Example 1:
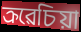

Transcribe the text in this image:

ক্ৰৱেচিয়া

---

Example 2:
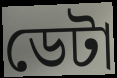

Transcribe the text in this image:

ডেটা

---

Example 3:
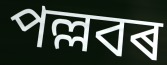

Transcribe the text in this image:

পল্লবৰ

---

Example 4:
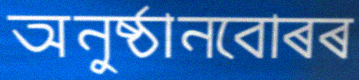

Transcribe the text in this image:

অনুষ্ঠানবোৰৰ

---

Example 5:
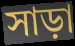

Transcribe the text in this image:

সাড়া